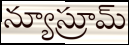
న్యూస్రూమ్